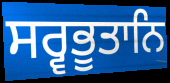
ਸਰ੍ਵਭੂਤਾਨਿ